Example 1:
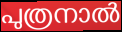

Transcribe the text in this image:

പുത്രനാൽ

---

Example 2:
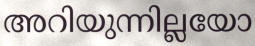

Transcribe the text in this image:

അറിയുന്നില്ലയോ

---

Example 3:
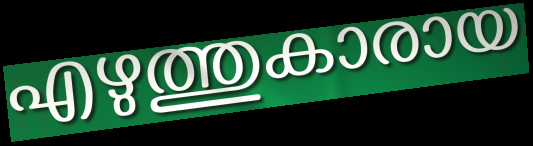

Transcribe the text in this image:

എഴുത്തുകാരായ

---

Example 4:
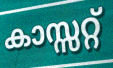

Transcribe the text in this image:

കാസ്സറ്റ്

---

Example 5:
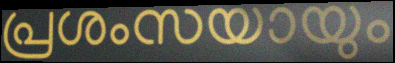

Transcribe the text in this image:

പ്രശംസയായും